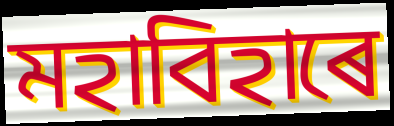
মহাবিহাৰে